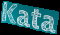
Kata